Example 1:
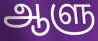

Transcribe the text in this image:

ஆளு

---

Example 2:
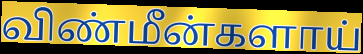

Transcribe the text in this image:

விண்மீன்களாய்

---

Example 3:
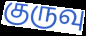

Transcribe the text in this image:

குருவு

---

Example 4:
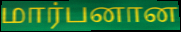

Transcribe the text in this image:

மார்பனான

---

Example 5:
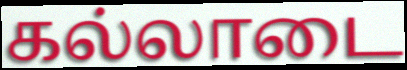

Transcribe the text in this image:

கல்லாடை